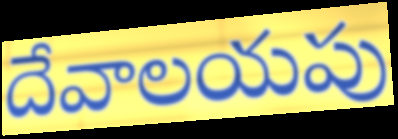
దేవాలయపు